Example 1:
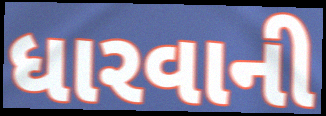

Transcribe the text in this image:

ધારવાની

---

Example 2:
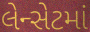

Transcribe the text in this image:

લેન્સેટમાં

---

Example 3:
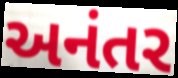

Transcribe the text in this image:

અનંતર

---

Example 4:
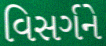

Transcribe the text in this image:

વિસર્ગને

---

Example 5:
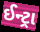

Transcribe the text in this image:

ઈન્ટ્રા